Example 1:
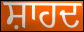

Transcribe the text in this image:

ਸ਼ਾਹਦ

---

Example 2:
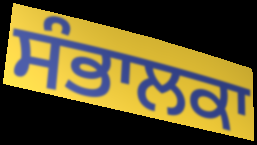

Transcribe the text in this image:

ਸੰਭਾਲਕਾ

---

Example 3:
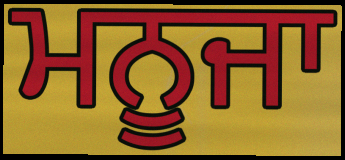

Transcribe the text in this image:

ਮਨੂਜਾ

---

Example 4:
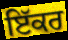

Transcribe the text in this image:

ਇੱਕਰ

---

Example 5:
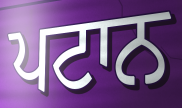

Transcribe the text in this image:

ਪਟਾਨ